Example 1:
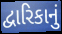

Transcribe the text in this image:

દ્વારિકાનું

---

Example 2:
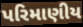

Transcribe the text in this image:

પરિમાણીય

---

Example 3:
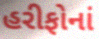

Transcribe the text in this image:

હરીફોનાં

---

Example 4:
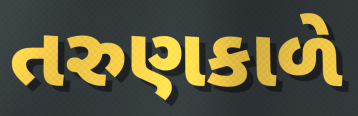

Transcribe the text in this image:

તરુણકાળે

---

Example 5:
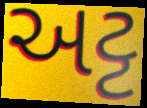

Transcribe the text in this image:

અટ્ટ